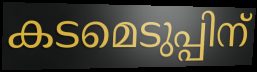
കടമെടുപ്പിന്